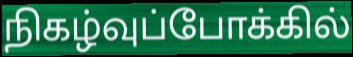
நிகழ்வுப்போக்கில்